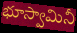
భూస్వామినీ